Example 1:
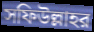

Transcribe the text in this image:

সফিউল্লাহর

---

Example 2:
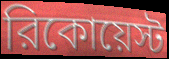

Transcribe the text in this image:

রিকোয়েস্ট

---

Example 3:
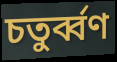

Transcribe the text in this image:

চতুর্ব্বণ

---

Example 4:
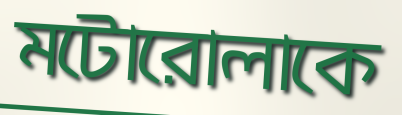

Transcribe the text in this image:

মটোরোলাকে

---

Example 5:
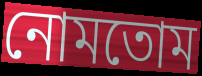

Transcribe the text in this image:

নোমতোম